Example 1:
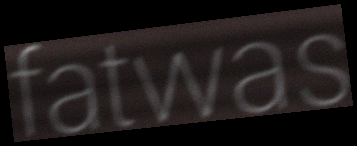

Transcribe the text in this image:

fatwas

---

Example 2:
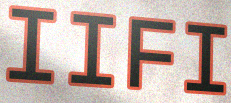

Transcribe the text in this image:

IIFI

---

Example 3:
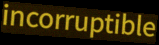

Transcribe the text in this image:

incorruptible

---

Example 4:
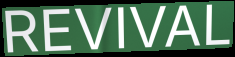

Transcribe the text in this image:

REVIVAL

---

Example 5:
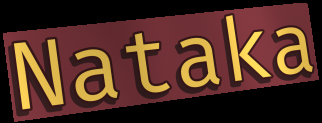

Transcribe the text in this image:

Nataka